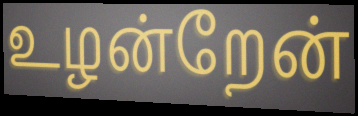
உழன்றேன்